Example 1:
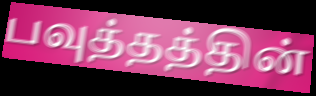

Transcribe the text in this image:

பவுத்தத்தின்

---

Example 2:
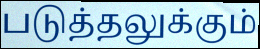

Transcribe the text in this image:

படுத்தலுக்கும்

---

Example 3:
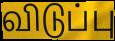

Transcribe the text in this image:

விடுப்பு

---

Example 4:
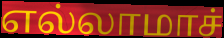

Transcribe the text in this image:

எல்லாமாச்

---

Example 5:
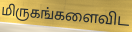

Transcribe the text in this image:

மிருகங்களைவிட